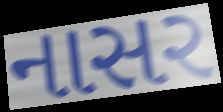
નાસર